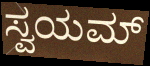
ಸ್ವಯಮ್